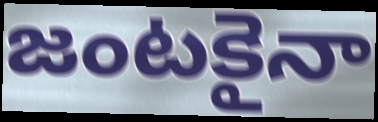
జంటకైనా